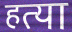
हत्‍या